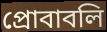
প্রোবাবলি